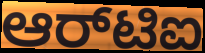
ಆರ್‌ಟಿಐ